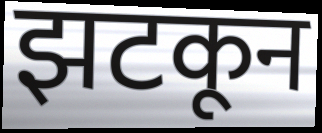
झटकून